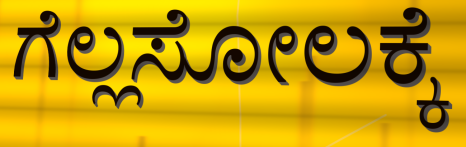
ಗೆಲ್ಲಸೋಲಕ್ಕೆ